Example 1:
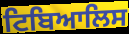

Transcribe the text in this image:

ਟਿਬਿਆਲਿਸ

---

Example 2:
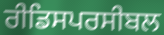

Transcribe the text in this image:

ਰੀਡਿਸਪਰਸੀਬਲ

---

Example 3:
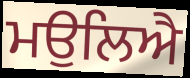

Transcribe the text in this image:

ਮਉਲਿਐ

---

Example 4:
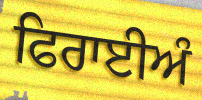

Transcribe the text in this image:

ਫਿਰਾਈਅੰ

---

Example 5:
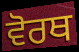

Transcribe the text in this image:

ਵੋਰਥ